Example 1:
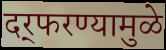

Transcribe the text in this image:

दर्फरण्यामुळे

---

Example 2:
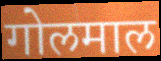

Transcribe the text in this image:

गोलमाल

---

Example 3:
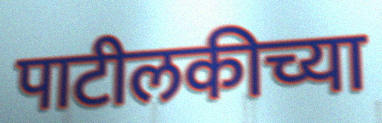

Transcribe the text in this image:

पाटीलकीच्या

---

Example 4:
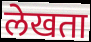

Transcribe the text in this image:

लेखता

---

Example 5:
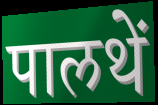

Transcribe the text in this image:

पालथें